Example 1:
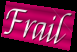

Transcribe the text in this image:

Frail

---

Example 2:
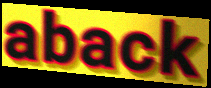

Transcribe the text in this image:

aback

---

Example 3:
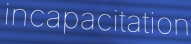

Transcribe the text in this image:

incapacitation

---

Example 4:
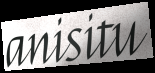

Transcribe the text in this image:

anisitu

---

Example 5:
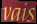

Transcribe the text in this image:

vais